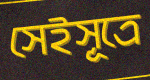
সেইসূত্রে